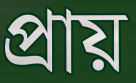
প্রায়